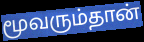
மூவரும்தான்